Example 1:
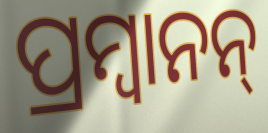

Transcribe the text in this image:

ପ୍ରମ୍ବାନନ୍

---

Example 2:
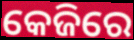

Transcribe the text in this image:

କେଜିରେ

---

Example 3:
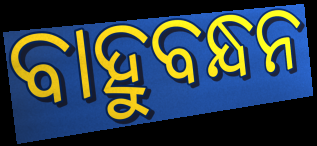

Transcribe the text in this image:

ବାହୁବନ୍ଧନ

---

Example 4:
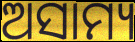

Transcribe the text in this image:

ଅସାମ୍ୟ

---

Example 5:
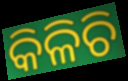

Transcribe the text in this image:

କିଳିଚି